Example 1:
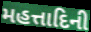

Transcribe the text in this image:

મહત્તાદિની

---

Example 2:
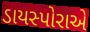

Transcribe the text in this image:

ડાયસ્પોરાએ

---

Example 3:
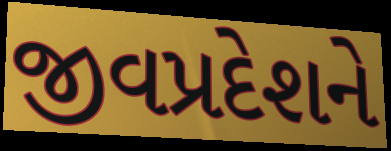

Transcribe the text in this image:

જીવપ્રદેશને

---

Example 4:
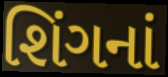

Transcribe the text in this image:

શિંગનાં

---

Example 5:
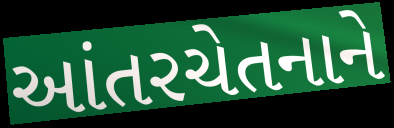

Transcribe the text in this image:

આંતરચેતનાને